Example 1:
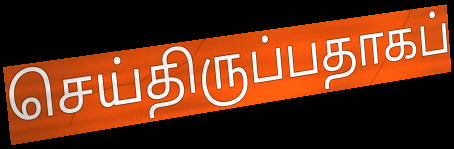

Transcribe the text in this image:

செய்திருப்பதாகப்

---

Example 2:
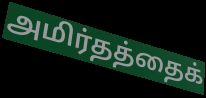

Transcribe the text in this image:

அமிர்தத்தைக்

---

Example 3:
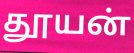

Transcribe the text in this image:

தூயன்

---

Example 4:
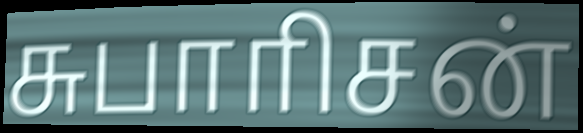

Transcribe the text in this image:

சுபாரிசன்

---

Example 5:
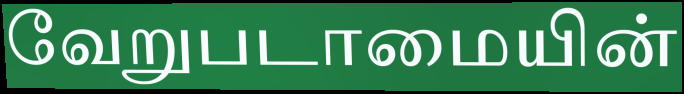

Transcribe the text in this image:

வேறுபடாமையின்